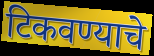
टिकवण्याचे